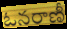
ఓనరాణీ